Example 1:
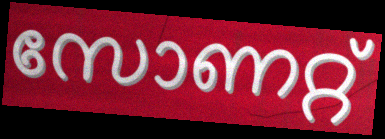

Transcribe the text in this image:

സോണറ്റ്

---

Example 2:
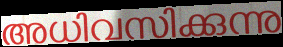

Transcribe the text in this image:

അധിവസിക്കുന്നു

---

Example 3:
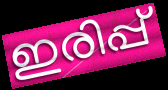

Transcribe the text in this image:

ഇരിപ്പ്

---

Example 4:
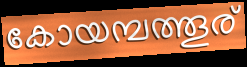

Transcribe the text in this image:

കോയമ്പത്തൂര്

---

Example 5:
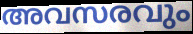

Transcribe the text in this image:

അവസരവും